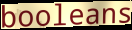
booleans